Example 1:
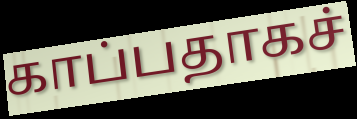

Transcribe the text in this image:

காப்பதாகச்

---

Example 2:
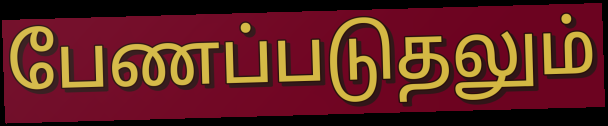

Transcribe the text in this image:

பேணப்படுதலும்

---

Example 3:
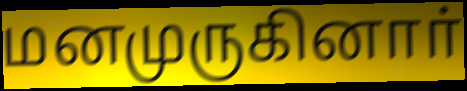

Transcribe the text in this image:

மனமுருகினார்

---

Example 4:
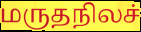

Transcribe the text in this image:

மருதநிலச்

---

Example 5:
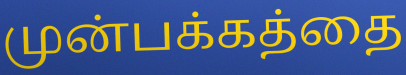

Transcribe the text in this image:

முன்பக்கத்தை